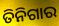
ତିନିଗାର